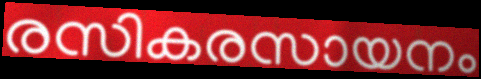
രസികരസായനം